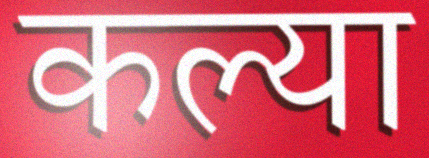
कल्या